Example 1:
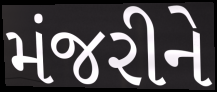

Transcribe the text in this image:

મંજરીને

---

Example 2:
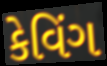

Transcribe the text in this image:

કેવિંગ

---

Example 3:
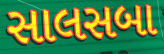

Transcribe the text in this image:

સાલસબા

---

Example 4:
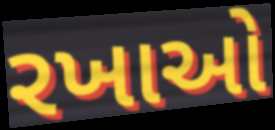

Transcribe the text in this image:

રખાઓ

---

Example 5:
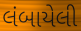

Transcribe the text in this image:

લંબાયેલી